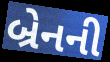
બ્રેનની